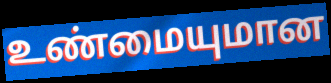
உண்மையுமான